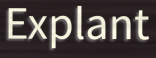
Explant